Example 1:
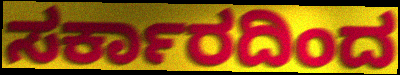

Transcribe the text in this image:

ಸರ್ಕಾರದಿಂದ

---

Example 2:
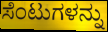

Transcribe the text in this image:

ಸೆಂಟುಗಳನ್ನು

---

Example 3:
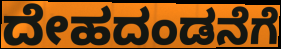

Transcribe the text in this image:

ದೇಹದಂಡನೆಗೆ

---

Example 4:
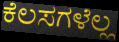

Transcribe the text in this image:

ಕೆಲಸಗಳೆಲ್ಲ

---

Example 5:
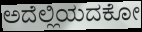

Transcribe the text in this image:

ಅದೆಲ್ಲಿಯದಕೋ